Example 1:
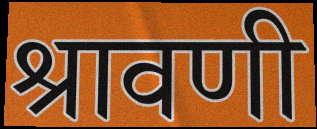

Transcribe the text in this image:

श्रावणी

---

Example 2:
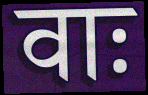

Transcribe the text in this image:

वाः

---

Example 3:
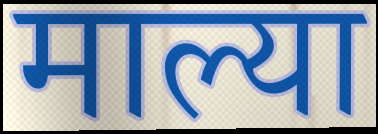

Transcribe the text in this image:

माल्या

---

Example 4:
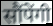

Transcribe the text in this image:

सौंपेंगी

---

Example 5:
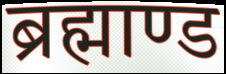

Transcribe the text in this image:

ब्रह्माण्ड